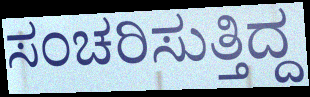
ಸಂಚರಿಸುತ್ತಿದ್ದ